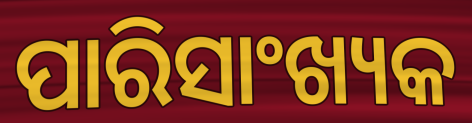
ପାରିସାଂଖ୍ୟକ